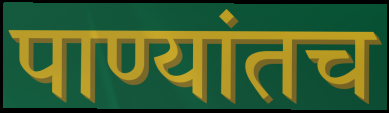
पाण्यांतच